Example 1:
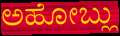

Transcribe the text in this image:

ಅಹೋಬ್ಲು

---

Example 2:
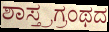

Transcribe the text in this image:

ಶಾಸ್ತ್ರಗ್ರಂಥದ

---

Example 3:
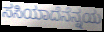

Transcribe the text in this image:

ಸಸಿಯಾದೆನೆನ್ನಯ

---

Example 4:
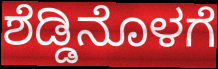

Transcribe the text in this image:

ಶೆಡ್ಡಿನೊಳಗೆ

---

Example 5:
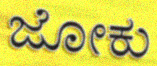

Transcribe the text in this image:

ಜೋಕು